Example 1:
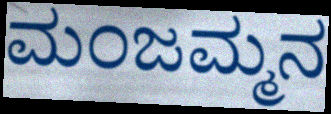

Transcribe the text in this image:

ಮಂಜಮ್ಮನ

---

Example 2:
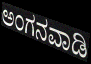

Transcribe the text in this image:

ಅಂಗನವಾಡಿ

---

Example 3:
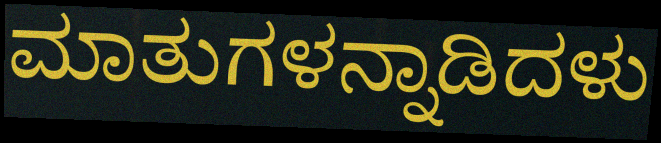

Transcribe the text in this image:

ಮಾತುಗಳನ್ನಾಡಿದಳು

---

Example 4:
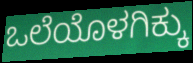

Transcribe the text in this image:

ಒಲೆಯೊಳಗಿಕ್ಕು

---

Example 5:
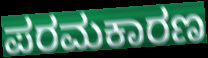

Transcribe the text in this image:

ಪರಮಕಾರಣ